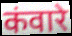
कंवारे